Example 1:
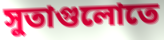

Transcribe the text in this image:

সুতাগুলোতে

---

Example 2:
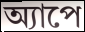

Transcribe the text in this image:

অ্যাপে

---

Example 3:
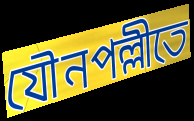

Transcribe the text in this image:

যৌনপল্লীতে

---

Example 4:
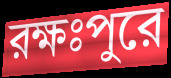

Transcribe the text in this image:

রক্ষঃপুরে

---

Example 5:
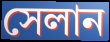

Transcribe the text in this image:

সেলান